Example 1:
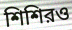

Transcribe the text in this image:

শিশিরও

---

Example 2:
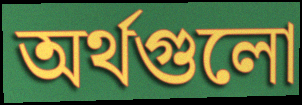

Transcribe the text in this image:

অর্থগুলো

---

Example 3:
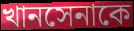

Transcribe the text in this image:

খানসেনাকে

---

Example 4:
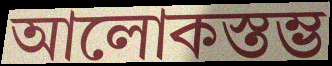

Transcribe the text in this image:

আলোকস্তম্ভ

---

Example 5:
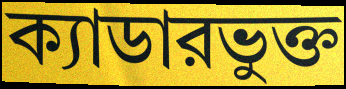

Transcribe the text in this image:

ক্যাডারভুক্ত